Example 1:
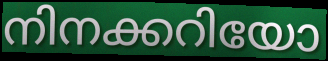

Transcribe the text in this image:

നിനക്കറിയോ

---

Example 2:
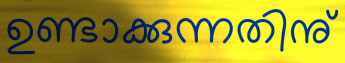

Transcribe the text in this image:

ഉണ്ടാക്കുന്നതിനു്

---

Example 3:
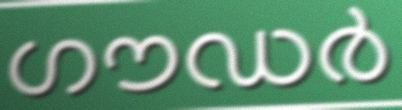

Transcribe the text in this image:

ഗൗഡർ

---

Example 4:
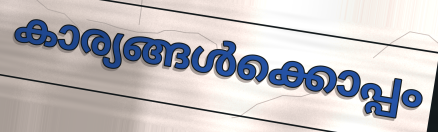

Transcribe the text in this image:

കാര്യങ്ങൾക്കൊപ്പം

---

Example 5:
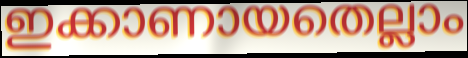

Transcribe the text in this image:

ഇക്കാണായതെല്ലാം